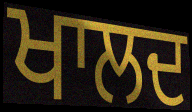
ਖਾਲਦ